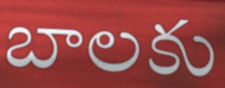
బాలకు